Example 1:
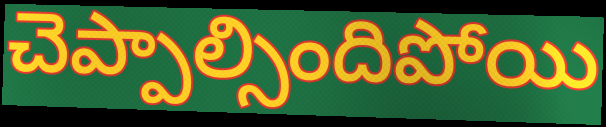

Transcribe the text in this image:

చెప్పాల్సిందిపోయి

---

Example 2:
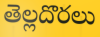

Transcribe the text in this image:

తెల్లదొరలు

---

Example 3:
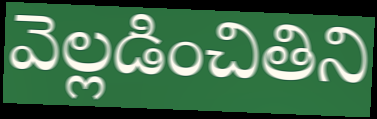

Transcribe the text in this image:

వెల్లడించితిని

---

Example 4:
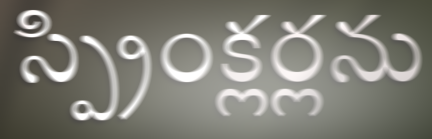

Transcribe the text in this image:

స్ప్రింక్లర్లను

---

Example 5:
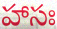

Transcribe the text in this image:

హాసః